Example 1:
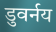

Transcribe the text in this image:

डुवर्नय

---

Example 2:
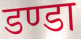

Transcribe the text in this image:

डण्डा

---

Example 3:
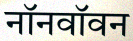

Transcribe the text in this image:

नॉनवॉवन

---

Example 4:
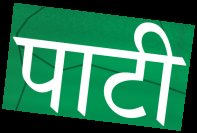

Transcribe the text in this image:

पाटी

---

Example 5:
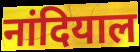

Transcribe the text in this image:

नांदियाल